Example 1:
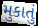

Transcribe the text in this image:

મુકાતું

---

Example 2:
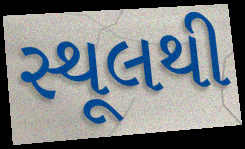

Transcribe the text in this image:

સ્થૂલથી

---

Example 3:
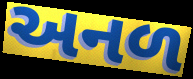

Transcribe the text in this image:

અનળ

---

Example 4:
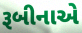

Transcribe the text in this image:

રૂબીનાએ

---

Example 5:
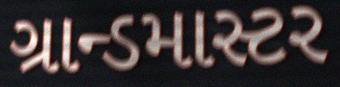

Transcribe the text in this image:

ગ્રાન્ડમાસ્ટર